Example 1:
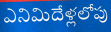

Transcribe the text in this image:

ఎనిమిదేళ్లలోపు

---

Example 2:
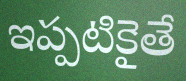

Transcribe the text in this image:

ఇప్పటికైతే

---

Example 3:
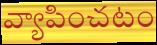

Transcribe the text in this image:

వ్యాపించటం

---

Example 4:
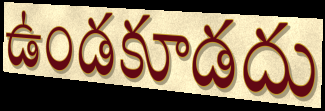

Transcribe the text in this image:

ఉండకూడదు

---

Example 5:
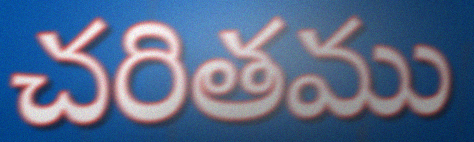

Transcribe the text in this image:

చరితము